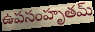
ఉపసంహృతమ్